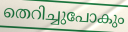
തെറിച്ചുപോകും